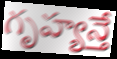
గృహ్యన్తే